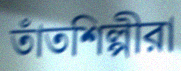
তাঁতশিল্পীরা